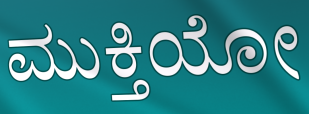
ಮುಕ್ತಿಯೋ